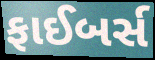
ફાઈબર્સ